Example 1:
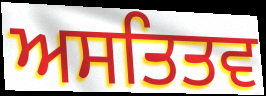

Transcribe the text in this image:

ਅਸਤਿਤਵ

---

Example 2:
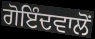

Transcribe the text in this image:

ਗੋਇੰਦਵਾਲੋਂ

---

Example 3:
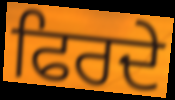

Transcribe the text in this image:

ਫਿਰਦੇ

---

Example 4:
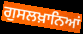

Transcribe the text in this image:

ਗੁਸਲਖ਼ਾਨਿਆਂ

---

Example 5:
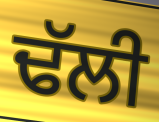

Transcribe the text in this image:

ਢੱਲੀ